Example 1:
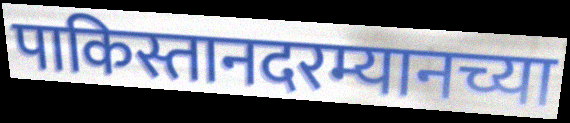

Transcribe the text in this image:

पाकिस्तानदरम्यानच्या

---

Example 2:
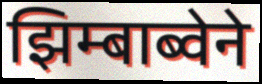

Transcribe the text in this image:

झिम्बाब्वेने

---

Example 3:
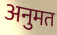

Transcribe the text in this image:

अनुमत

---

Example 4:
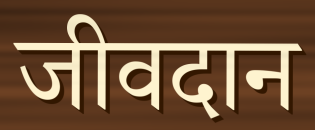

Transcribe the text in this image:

जीवदान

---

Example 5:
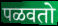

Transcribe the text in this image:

पळवतो